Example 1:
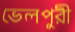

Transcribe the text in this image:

ভেলপুরী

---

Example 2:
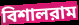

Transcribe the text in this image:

বিশালরাম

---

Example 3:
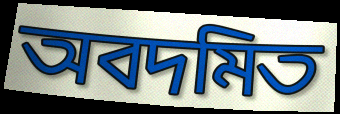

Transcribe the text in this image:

অবদমিত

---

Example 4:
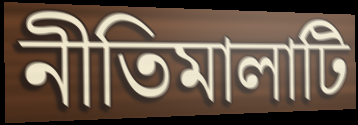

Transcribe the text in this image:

নীতিমালাটি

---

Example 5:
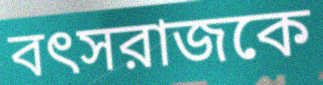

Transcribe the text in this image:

বৎসরাজকে